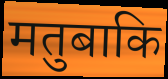
मतुबाकि